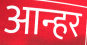
आन्हर